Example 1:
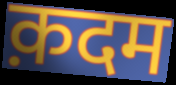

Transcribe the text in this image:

क़दम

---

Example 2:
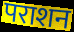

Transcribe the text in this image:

पराशन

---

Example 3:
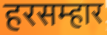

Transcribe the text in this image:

हरसम्हार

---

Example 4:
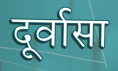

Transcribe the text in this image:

दूर्वासा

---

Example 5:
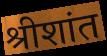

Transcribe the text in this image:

श्रीशांत